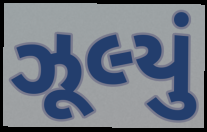
ઝૂલ્યું